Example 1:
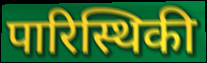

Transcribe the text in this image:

पारिस्थिकी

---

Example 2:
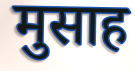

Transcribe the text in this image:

मुसाह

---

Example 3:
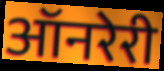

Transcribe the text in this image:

ऑनरेरी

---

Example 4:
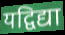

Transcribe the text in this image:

यद्विद्या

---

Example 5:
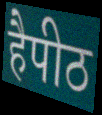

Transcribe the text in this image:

हैपीठ